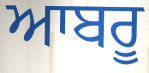
ਆਬਰੂ